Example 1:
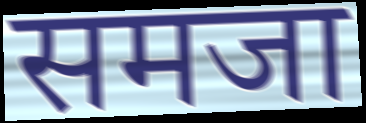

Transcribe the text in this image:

समजा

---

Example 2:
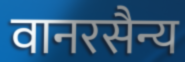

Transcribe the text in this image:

वानरसैन्य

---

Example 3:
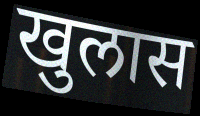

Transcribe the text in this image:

खुलास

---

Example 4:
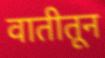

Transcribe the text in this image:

वातीतून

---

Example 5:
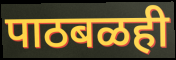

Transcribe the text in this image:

पाठबळही